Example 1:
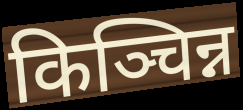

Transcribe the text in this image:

किञ्चिन्न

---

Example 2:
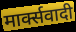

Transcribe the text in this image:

मार्क्सवादी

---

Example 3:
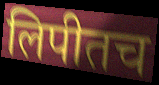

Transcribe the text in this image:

लिपीतच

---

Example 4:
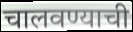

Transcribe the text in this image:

चालवण्याची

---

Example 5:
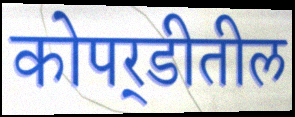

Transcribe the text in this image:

कोपर्डीतील